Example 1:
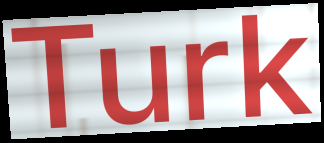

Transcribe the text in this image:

Turk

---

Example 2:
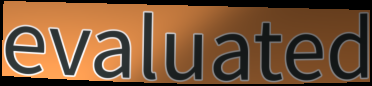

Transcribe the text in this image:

evaluated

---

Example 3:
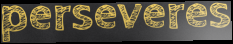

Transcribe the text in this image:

perseveres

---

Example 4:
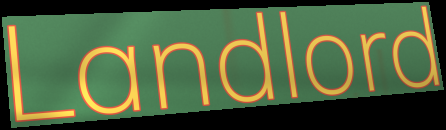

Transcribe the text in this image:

Landlord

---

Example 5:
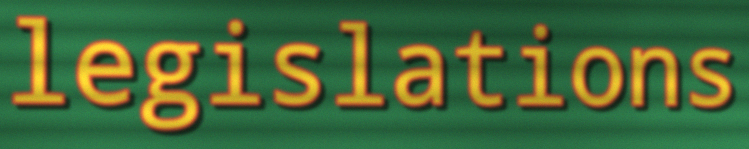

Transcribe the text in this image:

legislations